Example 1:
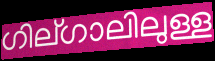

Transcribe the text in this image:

ഗില്ഗാലിലുള്ള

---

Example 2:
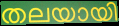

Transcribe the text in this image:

തലയായി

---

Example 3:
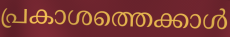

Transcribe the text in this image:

പ്രകാശത്തെക്കാൾ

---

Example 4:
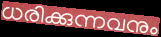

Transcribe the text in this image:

ധരിക്കുന്നവനും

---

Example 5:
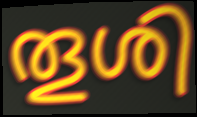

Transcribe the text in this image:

തൂശി